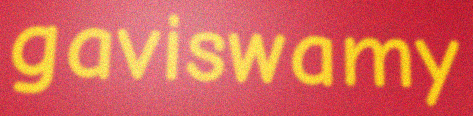
gaviswamy